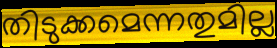
തിടുക്കമെന്നതുമില്ല